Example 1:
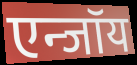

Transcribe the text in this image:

एन्जॉय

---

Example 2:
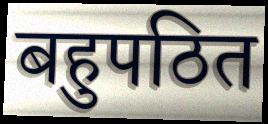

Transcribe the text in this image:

बहुपठित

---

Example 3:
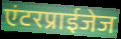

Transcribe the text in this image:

एंटरप्राईजेज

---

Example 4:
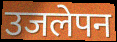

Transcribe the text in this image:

उजलेपन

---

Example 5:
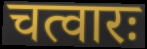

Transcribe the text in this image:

चत्वारः